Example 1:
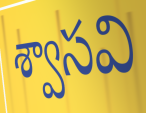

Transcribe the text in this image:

శ్వాసవి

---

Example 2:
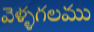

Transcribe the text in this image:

వెళ్ళగలము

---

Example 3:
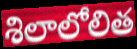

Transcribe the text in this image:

శిలాలోలిత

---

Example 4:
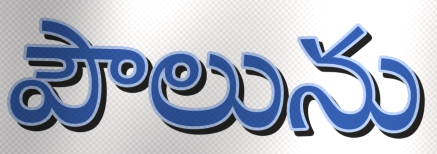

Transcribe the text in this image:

పౌలును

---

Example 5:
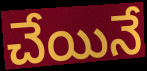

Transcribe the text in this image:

చేయినే